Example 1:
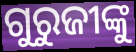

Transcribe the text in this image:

ଗୁରୁଜୀଙ୍କୁ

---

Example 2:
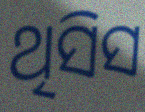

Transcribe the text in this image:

ଥିସିସ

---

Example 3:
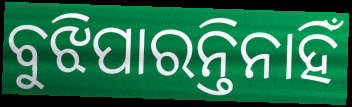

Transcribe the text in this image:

ବୁଝିପାରନ୍ତିନାହିଁ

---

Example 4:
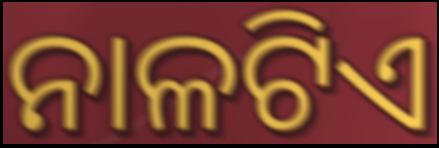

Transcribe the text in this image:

ନାଳଟିଏ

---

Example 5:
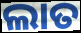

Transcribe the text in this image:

ଲାତ